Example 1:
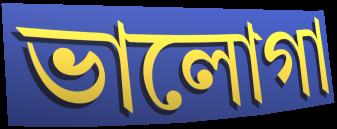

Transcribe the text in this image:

ভালোগা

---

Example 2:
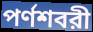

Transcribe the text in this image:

পর্ণশবরী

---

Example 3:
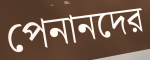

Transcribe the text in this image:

পেনানদের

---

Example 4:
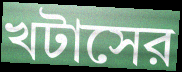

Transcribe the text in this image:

খটাসের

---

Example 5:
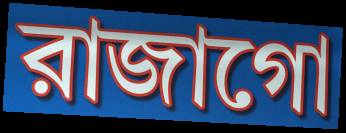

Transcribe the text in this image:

রাজাগো